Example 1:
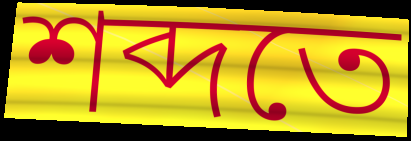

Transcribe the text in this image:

শব্দতে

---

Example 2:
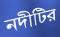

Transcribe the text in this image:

নদীটির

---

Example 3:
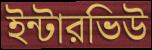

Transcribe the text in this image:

ইন্টারভিউ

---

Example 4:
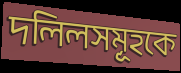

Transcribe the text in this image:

দলিলসমূহকে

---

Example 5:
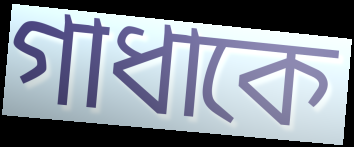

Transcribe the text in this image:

গাধাকে